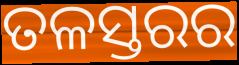
ତଳସ୍ତରର